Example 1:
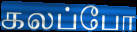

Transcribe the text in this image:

கலப்போ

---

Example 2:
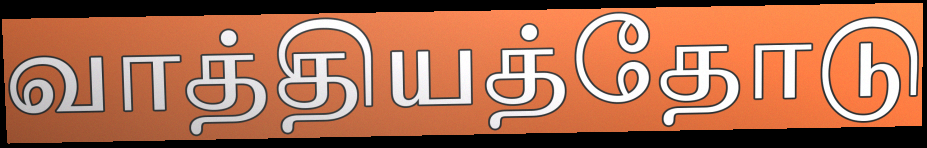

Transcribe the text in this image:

வாத்தியத்தோடு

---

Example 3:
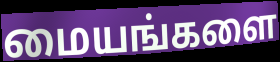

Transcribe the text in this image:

மையங்களை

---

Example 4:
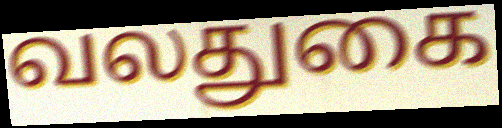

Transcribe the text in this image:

வலதுகை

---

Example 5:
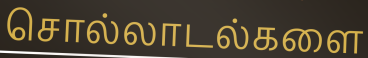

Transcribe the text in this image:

சொல்லாடல்களை